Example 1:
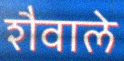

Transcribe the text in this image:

शैवाले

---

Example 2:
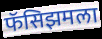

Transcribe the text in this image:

फॅसिझमला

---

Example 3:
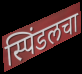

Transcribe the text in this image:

स्पिंडलचा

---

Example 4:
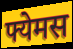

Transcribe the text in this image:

फ्येमस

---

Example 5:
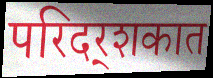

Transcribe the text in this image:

परिदर्शकात